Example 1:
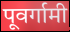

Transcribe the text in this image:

पूवर्गामी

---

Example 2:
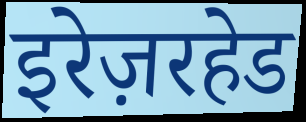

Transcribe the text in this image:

इरेज़रहेड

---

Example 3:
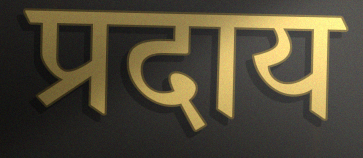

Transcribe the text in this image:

प्रदाय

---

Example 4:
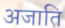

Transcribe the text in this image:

अजाति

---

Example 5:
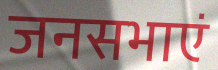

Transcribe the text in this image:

जनसभाएं